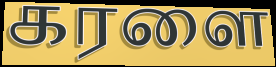
கரளை